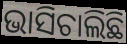
ଭାସିଚାଲିଛି